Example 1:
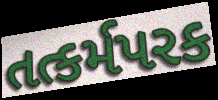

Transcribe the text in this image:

તત્કર્મપરક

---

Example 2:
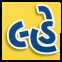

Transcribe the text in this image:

લ્હે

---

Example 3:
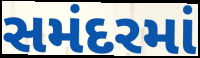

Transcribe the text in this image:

સમંદરમાં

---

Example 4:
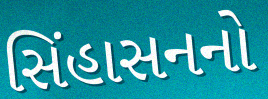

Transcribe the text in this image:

સિંહાસનનો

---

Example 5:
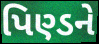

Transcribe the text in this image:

પિણ્ડને